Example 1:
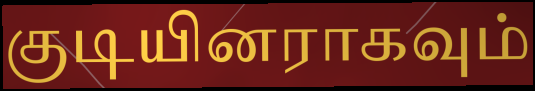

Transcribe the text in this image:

குடியினராகவும்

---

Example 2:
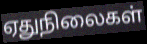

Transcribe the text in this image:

ஏதுநிலைகள்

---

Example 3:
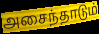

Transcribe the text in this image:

அசைந்தாடும்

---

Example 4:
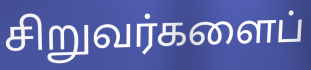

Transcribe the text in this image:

சிறுவர்களைப்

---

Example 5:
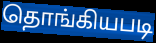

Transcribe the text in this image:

தொங்கியபடி